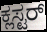
ಕ್ಲಸ್ಟರ್